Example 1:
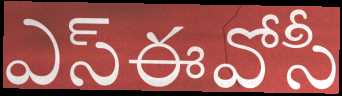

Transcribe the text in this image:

ఎస్ఈవోసీ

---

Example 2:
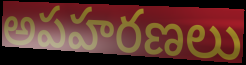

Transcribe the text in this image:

అపహరణలు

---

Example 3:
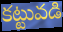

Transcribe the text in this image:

కట్టువడి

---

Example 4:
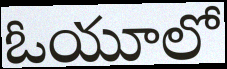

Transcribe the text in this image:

ఓయూలో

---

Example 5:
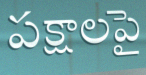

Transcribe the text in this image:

పక్షాలపై